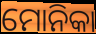
ମୋନିକା